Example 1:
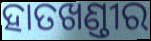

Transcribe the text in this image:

ହାତଖଣ୍ଡୀର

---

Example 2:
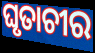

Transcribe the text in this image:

ଘୃତାଚୀର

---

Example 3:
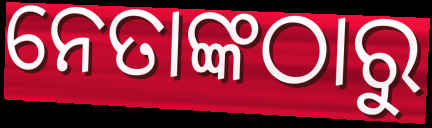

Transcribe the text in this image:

ନେତାଙ୍କଠାରୁ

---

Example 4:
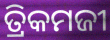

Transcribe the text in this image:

ତ୍ରିକମଜୀ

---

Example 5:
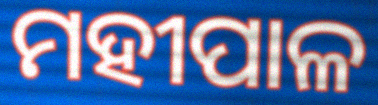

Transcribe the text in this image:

ମହୀପାଳ